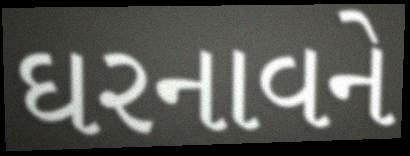
ઘરનાવને